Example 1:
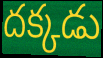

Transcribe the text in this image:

దక్కడు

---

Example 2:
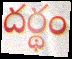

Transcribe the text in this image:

దర్థం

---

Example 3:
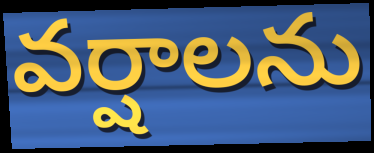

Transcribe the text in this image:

వర్షాలను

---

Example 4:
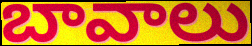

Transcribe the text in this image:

బావాలు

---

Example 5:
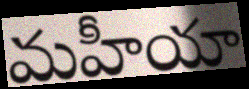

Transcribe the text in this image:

మహీయా